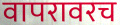
वापरावरच